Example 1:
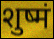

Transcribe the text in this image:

शुष्मं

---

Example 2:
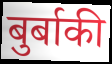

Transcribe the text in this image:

बुर्बाकी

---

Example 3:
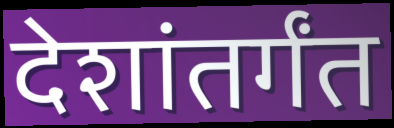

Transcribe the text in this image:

देशांतर्गंत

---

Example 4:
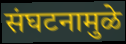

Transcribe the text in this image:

संघटनामुळे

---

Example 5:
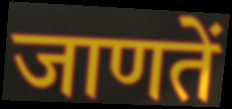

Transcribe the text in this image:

जाणतें